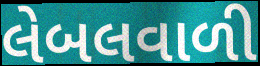
લેબલવાળી